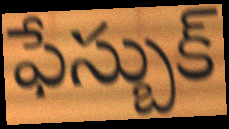
ఫేస్బుక్